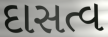
દાસત્વ